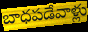
బాధపడేవాళ్లు